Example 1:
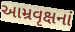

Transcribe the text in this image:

આમ્રવૃક્ષનાં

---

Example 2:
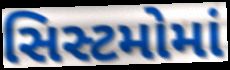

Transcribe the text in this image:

સિસ્ટમોમાં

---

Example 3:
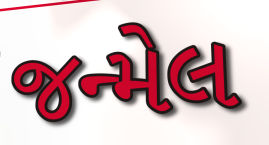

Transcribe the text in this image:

જન્મેલ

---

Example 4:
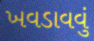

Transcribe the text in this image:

ખવડાવવું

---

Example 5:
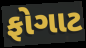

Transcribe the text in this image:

ફોગાટ